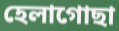
হেলাগোছা